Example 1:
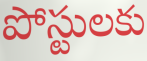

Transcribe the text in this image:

పోస్టులకు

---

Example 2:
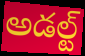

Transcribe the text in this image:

అడల్ట్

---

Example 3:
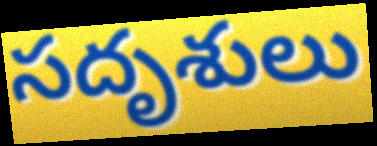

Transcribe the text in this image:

సదృశులు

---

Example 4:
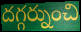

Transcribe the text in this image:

దగ్గర్నుంచి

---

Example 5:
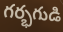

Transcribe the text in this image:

గర్భగుడి